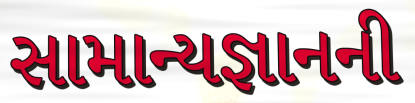
સામાન્યજ્ઞાનની